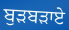
ਬੁੜਬੜਾਏ